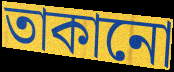
তাকানো